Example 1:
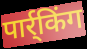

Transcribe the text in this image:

पार्र्किंग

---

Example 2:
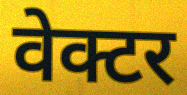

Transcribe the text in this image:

वेक्टर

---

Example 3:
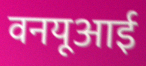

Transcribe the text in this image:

वनयूआई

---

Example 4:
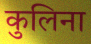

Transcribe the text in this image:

कुलिना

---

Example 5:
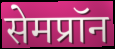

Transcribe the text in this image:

सेमप्रॉन